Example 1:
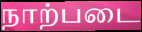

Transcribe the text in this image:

நாற்படை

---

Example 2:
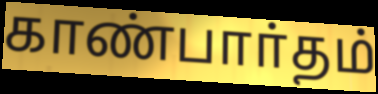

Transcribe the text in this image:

காண்பார்தம்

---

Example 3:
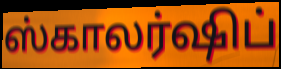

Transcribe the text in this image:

ஸ்காலர்ஷிப்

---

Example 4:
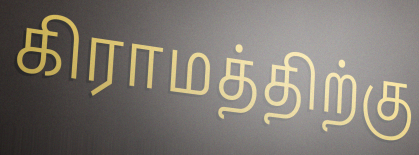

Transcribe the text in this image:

கிராமத்திற்கு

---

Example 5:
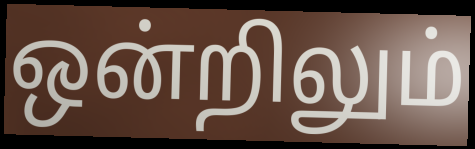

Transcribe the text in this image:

ஒன்றிலும்